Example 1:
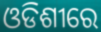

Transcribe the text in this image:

ଓଡିଶୀରେ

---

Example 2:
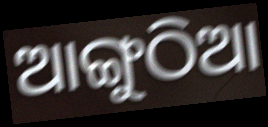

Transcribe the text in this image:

ଆଙ୍ଗୁଠିଆ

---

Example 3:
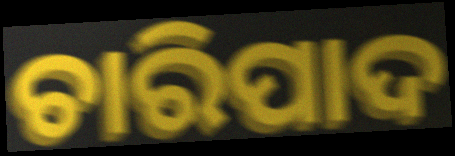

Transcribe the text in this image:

ଚାରିପାଦ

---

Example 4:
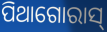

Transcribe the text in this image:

ପିଥାଗୋରାସ୍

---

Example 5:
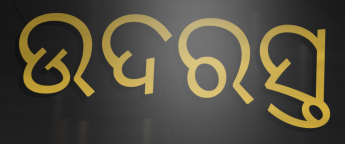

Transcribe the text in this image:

ଉଦରସ୍ତ